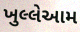
ખુલ્લેઆમ